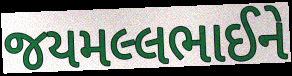
જયમલ્લભાઈને